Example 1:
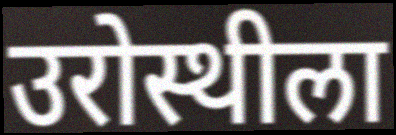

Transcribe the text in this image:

उरोस्थीला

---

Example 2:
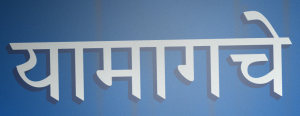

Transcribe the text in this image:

यामागचे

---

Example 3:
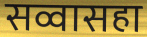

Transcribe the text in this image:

सव्वासहा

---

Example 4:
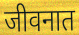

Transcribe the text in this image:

जीवनात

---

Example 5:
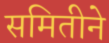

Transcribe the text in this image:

समितीने